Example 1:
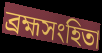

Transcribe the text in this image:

ব্রহ্মসংহিতা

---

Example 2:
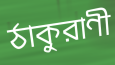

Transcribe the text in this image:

ঠাকুরাণী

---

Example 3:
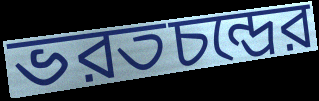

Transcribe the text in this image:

ভরতচন্দ্রের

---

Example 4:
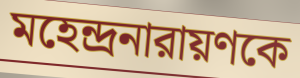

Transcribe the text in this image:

মহেন্দ্রনারায়ণকে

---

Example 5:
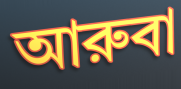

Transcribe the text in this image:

আরুবা